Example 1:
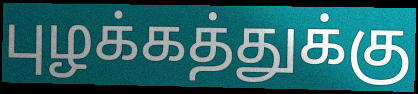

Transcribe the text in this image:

புழக்கத்துக்கு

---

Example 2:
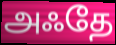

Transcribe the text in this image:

அஃதே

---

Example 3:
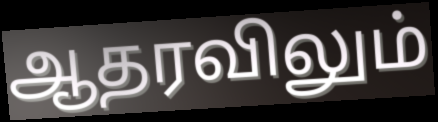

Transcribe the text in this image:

ஆதரவிலும்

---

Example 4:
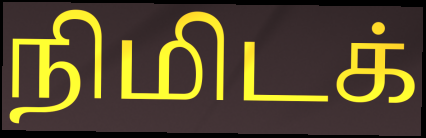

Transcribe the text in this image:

நிமிடக்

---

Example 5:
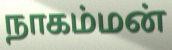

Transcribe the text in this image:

நாகம்மன்